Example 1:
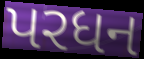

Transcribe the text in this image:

પરધન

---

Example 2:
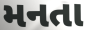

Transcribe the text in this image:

મનતા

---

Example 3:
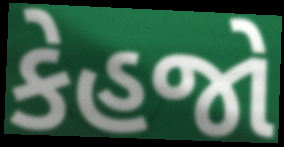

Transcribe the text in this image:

કેહજો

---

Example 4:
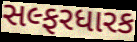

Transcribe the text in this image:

સલ્ફરધારક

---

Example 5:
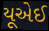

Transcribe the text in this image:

યૂએઈ